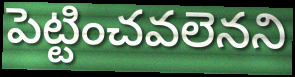
పెట్టించవలెనని